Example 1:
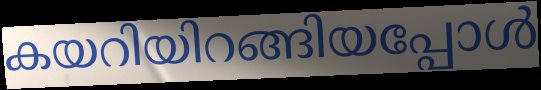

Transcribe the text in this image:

കയറിയിറങ്ങിയപ്പോൾ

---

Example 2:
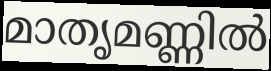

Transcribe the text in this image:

മാതൃമണ്ണിൽ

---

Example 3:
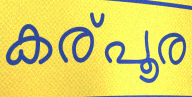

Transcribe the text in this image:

കര്പൂര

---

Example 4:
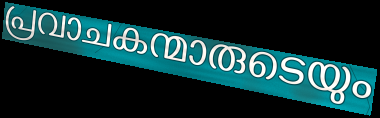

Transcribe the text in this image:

പ്രവാചകന്മാരുടെയും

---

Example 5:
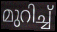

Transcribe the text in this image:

മുറിച്ച്